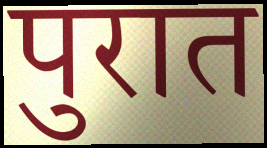
पुरात